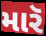
મારૅ